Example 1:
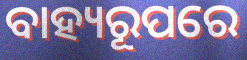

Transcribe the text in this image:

ବାହ୍ୟରୂପରେ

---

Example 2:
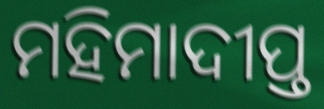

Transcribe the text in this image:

ମହିମାଦୀପ୍ତ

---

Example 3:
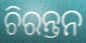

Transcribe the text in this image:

ଚିରନ୍ତନ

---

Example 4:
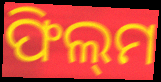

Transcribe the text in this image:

ଫିଲ୍‌ମ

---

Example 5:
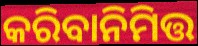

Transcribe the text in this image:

କରିବାନିମିତ୍ତ